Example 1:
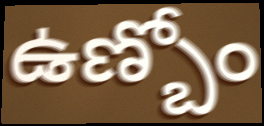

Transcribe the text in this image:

ఉణ్బోం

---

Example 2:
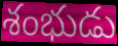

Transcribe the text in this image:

శంభుడు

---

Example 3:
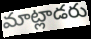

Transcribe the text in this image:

మాట్లాడరు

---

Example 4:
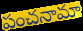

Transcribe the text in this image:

పంచనామా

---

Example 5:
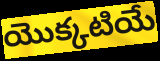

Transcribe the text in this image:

యొక్కటియే